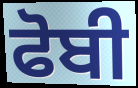
ਫੋਬੀ